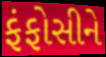
ફંફોસીને